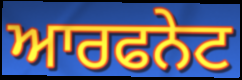
ਆਰਫਨੇਟ